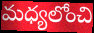
మధ్యలోంచి